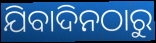
ଯିବାଦିନଠାରୁ